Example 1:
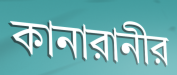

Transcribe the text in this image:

কানারানীর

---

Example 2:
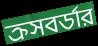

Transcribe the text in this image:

ক্রসবর্ডার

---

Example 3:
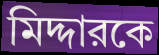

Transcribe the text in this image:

মিদ্দারকে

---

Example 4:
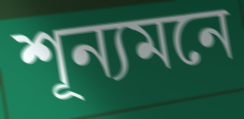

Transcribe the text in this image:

শূন্যমনে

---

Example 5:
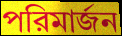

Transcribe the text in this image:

পরিমার্জন